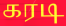
கரடி